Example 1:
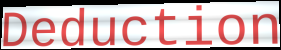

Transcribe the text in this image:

Deduction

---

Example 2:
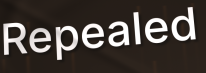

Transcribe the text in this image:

Repealed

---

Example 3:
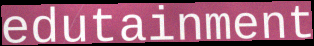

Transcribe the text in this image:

edutainment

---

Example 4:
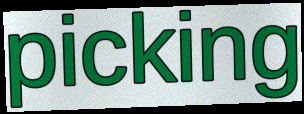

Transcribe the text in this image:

picking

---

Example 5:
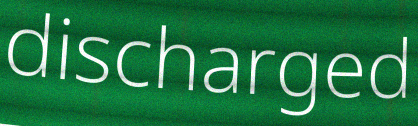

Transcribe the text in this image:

discharged